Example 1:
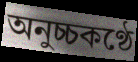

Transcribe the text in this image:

অনুচ্চকণ্ঠে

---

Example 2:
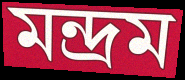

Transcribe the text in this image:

মন্দ্রম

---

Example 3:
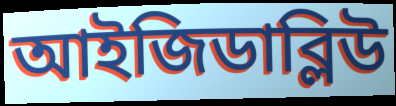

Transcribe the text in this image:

আইজিডাব্লিউ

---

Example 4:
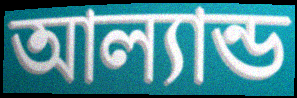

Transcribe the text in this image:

আল্যান্ড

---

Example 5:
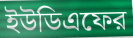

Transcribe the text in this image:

ইউডিএফের